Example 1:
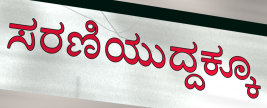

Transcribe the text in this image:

ಸರಣಿಯುದ್ದಕ್ಕೂ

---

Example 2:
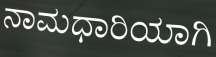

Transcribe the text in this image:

ನಾಮಧಾರಿಯಾಗಿ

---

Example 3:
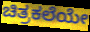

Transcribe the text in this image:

ಚಿತ್ರಕಲೆಯೇ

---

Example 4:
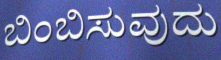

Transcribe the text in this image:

ಬಿಂಬಿಸುವುದು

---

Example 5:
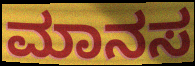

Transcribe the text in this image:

ಮಾನಸ